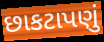
છાકટાપણું